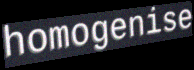
homogenise